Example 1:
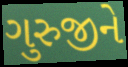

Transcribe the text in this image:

ગુરુજીને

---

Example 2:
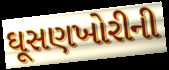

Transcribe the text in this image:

ઘૂસણખોરીની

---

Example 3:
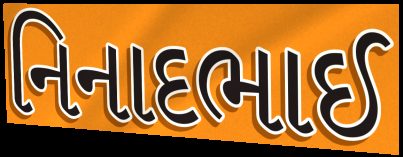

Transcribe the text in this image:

નિનાદભાઈ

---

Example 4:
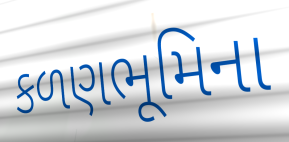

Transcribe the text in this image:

કળણભૂમિના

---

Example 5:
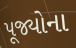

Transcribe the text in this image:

પૂજ્યોના